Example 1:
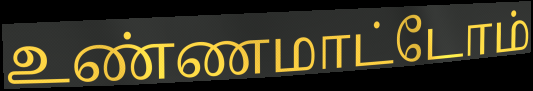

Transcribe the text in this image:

உண்ணமாட்டோம்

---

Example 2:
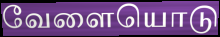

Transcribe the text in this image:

வேளையொடு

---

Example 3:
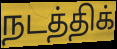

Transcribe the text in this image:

நடத்திக்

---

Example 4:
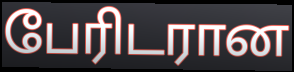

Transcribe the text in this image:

பேரிடரான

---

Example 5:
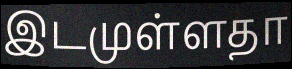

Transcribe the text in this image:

இடமுள்ளதா